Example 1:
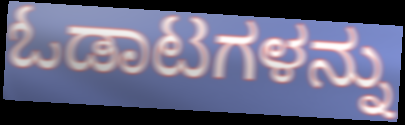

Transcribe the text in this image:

ಓಡಾಟಗಳನ್ನು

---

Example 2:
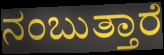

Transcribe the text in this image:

ನಂಬುತ್ತಾರೆ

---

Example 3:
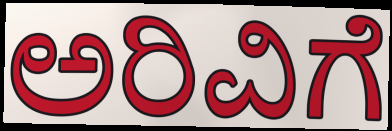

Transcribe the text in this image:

ಅರಿವಿಗೆ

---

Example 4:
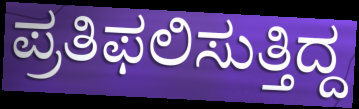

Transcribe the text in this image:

ಪ್ರತಿಫಲಿಸುತ್ತಿದ್ದ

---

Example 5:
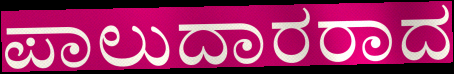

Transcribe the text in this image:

ಪಾಲುದಾರರಾದ